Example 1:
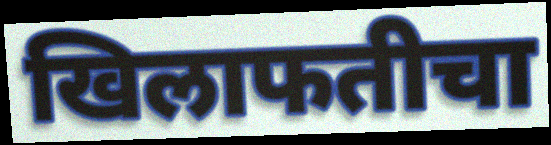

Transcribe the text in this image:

खिलाफतीचा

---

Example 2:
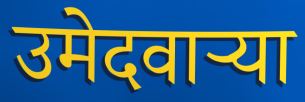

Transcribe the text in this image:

उमेदवाऱ्या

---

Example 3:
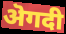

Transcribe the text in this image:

ऄगदी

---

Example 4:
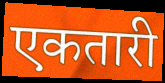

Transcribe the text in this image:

एकतारी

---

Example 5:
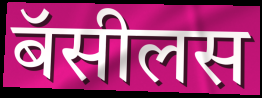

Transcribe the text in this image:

बॅसीलस